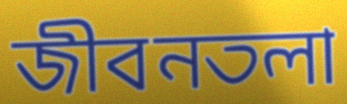
জীবনতলা